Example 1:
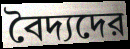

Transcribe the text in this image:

বৈদ্যদের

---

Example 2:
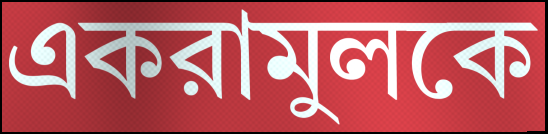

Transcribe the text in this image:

একরামুলকে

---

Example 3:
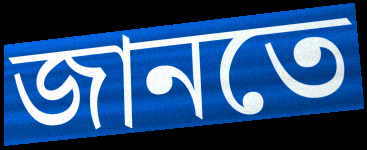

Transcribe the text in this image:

জানতে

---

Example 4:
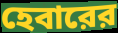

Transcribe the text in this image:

হেবারের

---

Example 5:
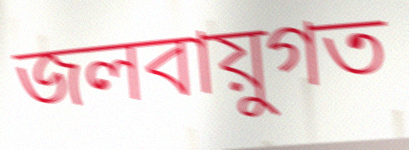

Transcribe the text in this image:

জলবায়ুগত